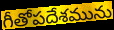
గీతోపదేశమును